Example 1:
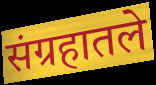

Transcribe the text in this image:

संग्रहातले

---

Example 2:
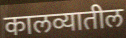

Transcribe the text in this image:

कालव्यातील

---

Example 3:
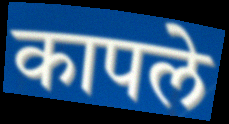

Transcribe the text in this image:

कापले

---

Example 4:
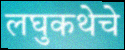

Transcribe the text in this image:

लघुकथेचे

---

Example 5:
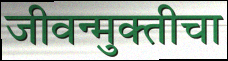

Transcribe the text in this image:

जीवन्मुक्तीचा